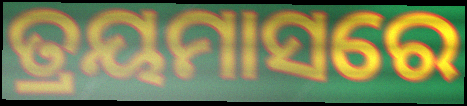
ତ୍ରୟମାସରେ